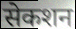
सेकशन